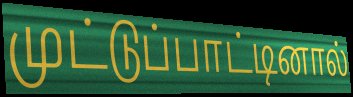
முட்டுப்பாட்டினால்